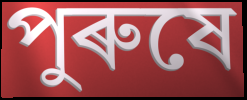
পুৰুষে